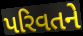
પરિવતને